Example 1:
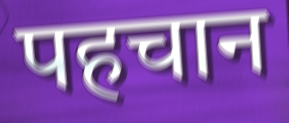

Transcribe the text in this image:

पहचान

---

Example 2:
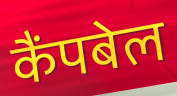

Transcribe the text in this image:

कैंपबेल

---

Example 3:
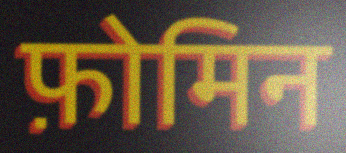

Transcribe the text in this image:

फ़ोमिन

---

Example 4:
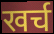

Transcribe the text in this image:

खर्च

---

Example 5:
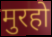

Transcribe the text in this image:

मुरहो